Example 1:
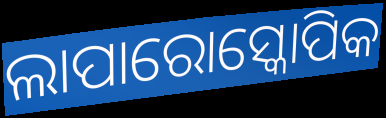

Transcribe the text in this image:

ଲାପାରୋସ୍କୋପିକ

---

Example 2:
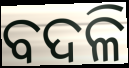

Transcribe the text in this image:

ବଦଳି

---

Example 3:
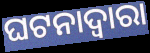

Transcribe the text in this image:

ଘଟନାଦ୍ୱାରା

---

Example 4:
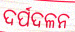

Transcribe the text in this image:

ଦର୍ପଦଳନ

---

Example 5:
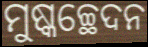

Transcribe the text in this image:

ମୁଷ୍କଚ୍ଛେଦନ